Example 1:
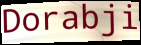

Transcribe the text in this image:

Dorabji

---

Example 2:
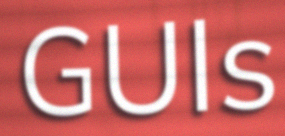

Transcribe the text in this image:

GUIs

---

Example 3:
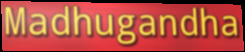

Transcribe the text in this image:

Madhugandha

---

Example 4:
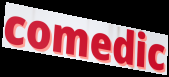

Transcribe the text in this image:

comedic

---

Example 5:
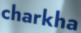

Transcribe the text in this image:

charkha